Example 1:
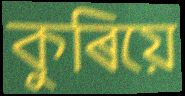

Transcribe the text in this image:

কুৰিয়ে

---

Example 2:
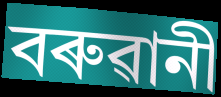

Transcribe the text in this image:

বৰুৱানী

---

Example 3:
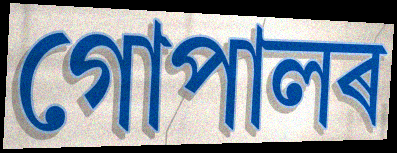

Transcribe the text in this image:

গোপালৰ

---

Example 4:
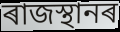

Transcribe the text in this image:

ৰাজস্থানৰ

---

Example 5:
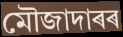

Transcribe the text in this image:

মৌজাদাৰৰ